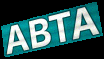
ABTA